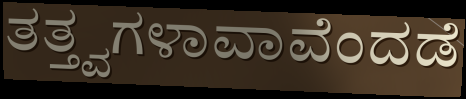
ತತ್ತ್ವಗಳಾವಾವೆಂದಡೆ